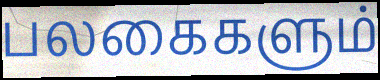
பலகைகளும்